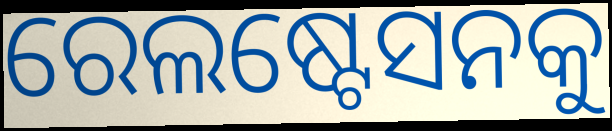
ରେଲଷ୍ଟେସନକୁ